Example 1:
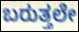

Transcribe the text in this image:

ಬರುತ್ತಲೇ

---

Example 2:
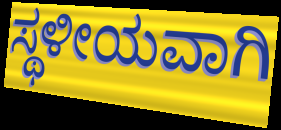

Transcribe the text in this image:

ಸ್ಥಳೀಯವಾಗಿ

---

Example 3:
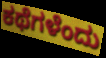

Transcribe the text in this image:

ಕಥೆಗಳೆಂದು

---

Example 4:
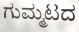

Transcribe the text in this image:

ಗುಮ್ಮಟದ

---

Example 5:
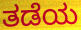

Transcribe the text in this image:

ತಡೆಯ